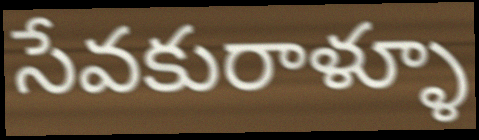
సేవకురాళ్ళూ